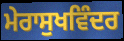
ਮੇਰਾਸੁਖਵਿੰਦਰ